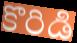
కొరిడి